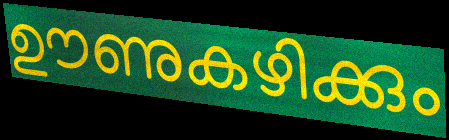
ഊണുകഴിക്കും